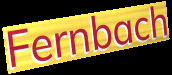
Fernbach